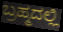
ಬ್ರಹ್ಮದಲ್ಲಿ